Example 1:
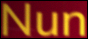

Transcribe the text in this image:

Nun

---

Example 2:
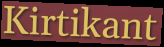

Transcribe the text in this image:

Kirtikant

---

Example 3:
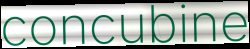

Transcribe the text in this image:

concubine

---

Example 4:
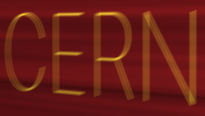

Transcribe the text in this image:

CERN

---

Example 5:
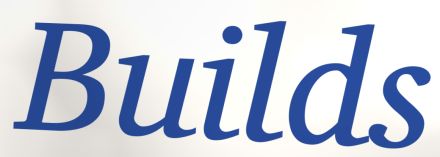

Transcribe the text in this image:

Builds